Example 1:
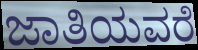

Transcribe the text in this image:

ಜಾತಿಯವರೆ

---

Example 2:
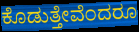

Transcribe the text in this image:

ಕೊಡುತ್ತೇವೆಂದರೂ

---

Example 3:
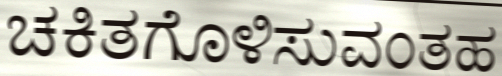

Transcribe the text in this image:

ಚಕಿತಗೊಳಿಸುವಂತಹ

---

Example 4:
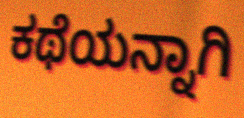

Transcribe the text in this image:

ಕಥೆಯನ್ನಾಗಿ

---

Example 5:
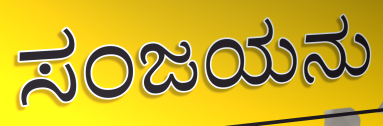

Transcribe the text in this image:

ಸಂಜಯನು